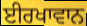
ਈਰਖਾਵਾਨ